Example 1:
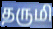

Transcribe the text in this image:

தருமி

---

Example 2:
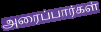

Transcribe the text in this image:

அரைப்பார்கள்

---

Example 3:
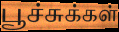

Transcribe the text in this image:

பூச்சுக்கள்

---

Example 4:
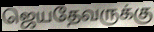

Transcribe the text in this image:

ஜெயதேவருக்கு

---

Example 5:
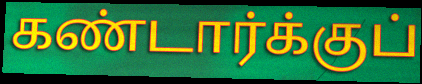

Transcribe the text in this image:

கண்டார்க்குப்